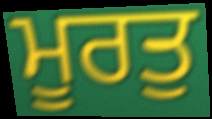
ਮੂਰਤੁ